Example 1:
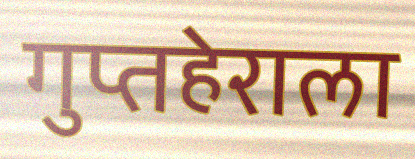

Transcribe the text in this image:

गुप्तहेराला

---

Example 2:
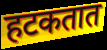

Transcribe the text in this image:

हटकतात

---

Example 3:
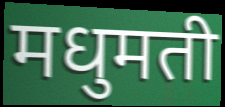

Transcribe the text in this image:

मधुमती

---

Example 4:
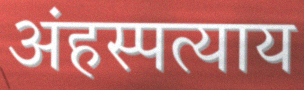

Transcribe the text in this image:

अंहस्पत्याय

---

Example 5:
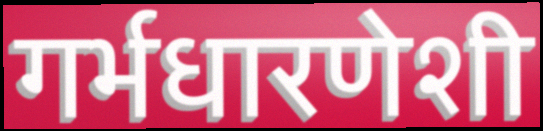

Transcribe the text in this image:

गर्भधारणेशी